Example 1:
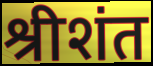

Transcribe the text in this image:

श्रीशंत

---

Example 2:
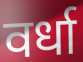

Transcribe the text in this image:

वर्धा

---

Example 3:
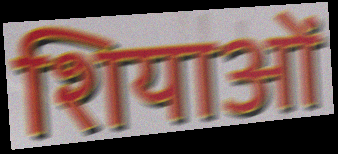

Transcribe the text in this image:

शियाओं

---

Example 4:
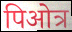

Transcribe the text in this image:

पिओत्र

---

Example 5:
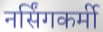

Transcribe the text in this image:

नर्सिंगकर्मी